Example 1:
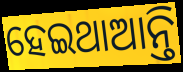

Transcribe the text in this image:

ହେଇଥାଆନ୍ତି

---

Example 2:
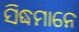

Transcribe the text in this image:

ସିଦ୍ଧମାନେ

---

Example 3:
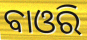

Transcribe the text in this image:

ବାଓରି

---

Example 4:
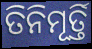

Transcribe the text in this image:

ତିନିମୂର୍ତ୍ତି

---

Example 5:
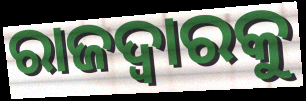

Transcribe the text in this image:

ରାଜଦ୍ୱାରକୁ